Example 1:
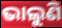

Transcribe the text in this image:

ଭାଲୁଣି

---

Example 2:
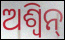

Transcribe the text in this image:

ଅଶ୍ବିନ୍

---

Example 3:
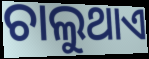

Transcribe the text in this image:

ଚାଲୁଥାଏ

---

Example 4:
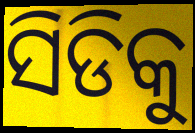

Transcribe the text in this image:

ସିଡିକୁ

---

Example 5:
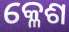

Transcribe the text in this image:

କ୍ଳେଶ